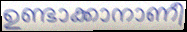
ഉണ്ടാക്കാനാണീ